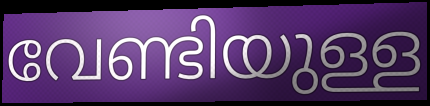
വേണ്ടിയുള്ള